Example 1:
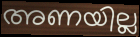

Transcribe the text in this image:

അണയില്ല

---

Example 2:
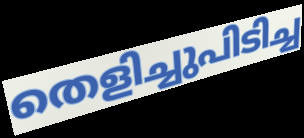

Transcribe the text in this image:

തെളിച്ചുപിടിച്ച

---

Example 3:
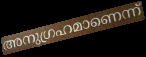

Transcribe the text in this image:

അനുഗ്രഹമാണെന്ന്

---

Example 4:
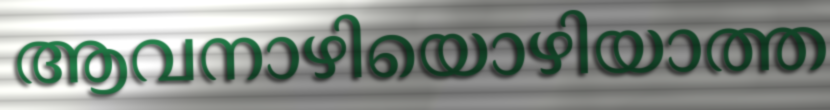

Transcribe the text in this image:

ആവനാഴിയൊഴിയാത്ത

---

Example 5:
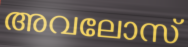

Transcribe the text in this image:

അവലോസ്